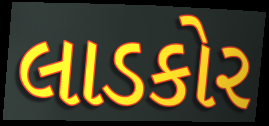
લાડકોર